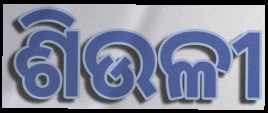
ଶିଉଳୀ